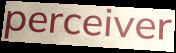
perceiver